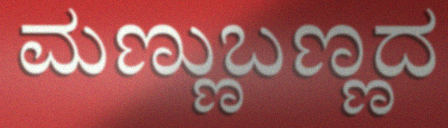
ಮಣ್ಣುಬಣ್ಣದ